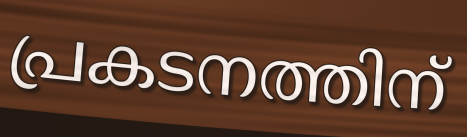
പ്രകടനത്തിന്